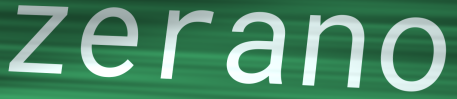
zerano